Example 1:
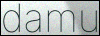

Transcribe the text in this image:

damu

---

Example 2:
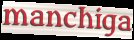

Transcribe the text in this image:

manchiga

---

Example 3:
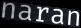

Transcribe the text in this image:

naran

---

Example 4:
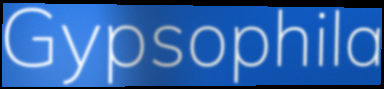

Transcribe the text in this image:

Gypsophila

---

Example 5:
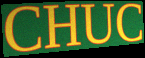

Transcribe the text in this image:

CHUC